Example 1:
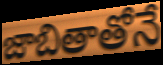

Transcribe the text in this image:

జాబితాతోనే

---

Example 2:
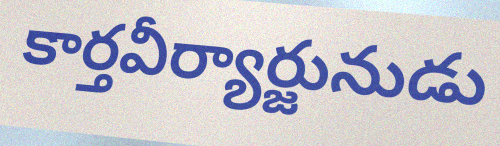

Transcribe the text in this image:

కార్తవీర్యార్జునుడు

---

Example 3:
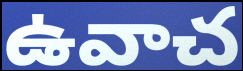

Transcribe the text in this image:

ఉవాచ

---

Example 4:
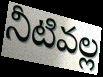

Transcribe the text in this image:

నీటివల్ల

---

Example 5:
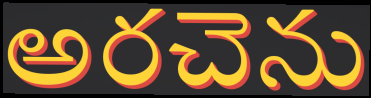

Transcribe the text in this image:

అరచెను